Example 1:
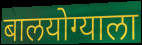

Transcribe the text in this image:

बालयोग्याला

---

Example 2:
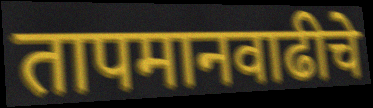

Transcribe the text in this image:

तापमानवाढीचे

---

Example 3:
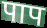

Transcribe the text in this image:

पाप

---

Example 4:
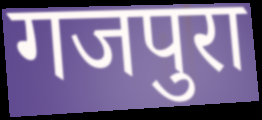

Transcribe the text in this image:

गजपुरा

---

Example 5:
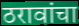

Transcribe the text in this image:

ठरावांचा